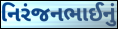
નિરંજનભાઈનું